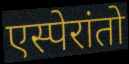
एस्पेरांतो